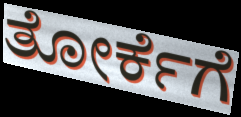
ತೋರ್ಕೆಗೆ